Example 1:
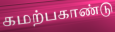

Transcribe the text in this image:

கமற்பகாண்டு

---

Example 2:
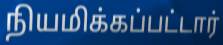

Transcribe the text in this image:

நியமிக்கப்பட்டார்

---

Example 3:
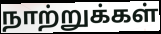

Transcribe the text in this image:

நாற்றுக்கள்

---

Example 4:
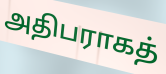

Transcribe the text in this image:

அதிபராகத்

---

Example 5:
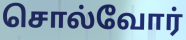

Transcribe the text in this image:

சொல்வோர்